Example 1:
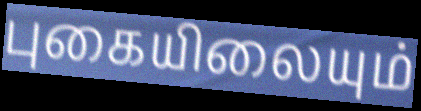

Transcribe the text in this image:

புகையிலையும்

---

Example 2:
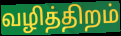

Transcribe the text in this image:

வழித்திறம்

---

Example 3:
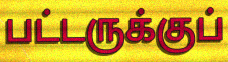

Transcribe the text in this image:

பட்டருக்குப்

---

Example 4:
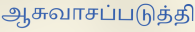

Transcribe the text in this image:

ஆசுவாசப்படுத்தி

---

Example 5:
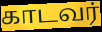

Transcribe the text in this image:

காடவர்